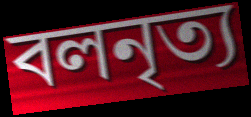
বলনৃত্য